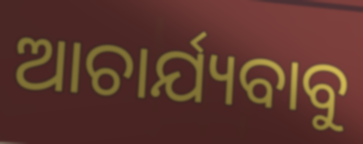
ଆଚାର୍ଯ୍ୟବାବୁ